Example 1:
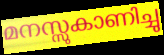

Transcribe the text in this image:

മനസ്സുകാണിച്ചു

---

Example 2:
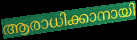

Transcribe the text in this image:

ആരാധിക്കാനായി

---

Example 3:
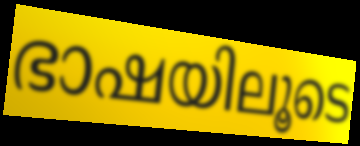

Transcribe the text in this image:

ഭാഷയിലൂടെ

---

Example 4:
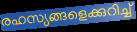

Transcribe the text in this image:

രഹസ്യങ്ങളെക്കുറിച്ച്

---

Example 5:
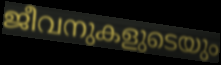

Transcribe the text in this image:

ജീവനുകളുടെയും